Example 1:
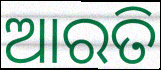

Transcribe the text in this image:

ଆରତି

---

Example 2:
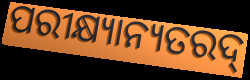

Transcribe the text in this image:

ପରୀକ୍ଷ୍ୟାନ୍ୟତରଦ୍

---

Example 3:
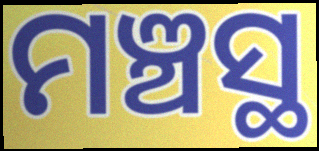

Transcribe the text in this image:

ମଞ୍ଚସ୍ଥ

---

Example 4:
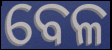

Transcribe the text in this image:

ବେଳ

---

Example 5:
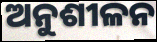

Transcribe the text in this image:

ଅନୁଶୀଳନ